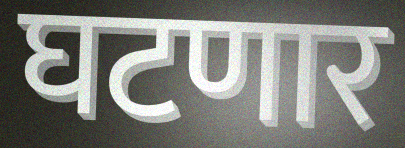
घटणार